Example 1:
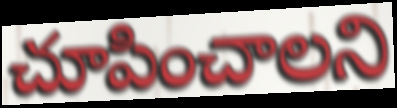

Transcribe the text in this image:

చూపించాలని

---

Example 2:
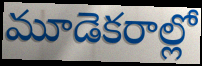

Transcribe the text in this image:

మూడెకరాల్లో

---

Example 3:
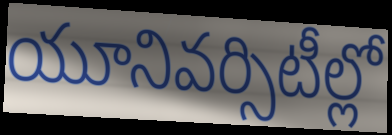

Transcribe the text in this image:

యూనివర్సిటీల్లో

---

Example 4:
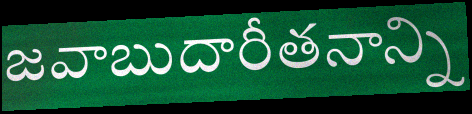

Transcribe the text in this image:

జవాబుదారీతనాన్ని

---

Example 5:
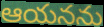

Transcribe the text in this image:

ఆయనను